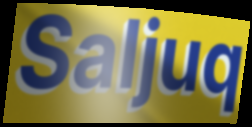
Saljuq